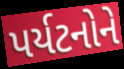
પર્યટનોને